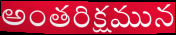
అంతరిక్షమున